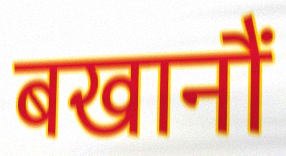
बखानौं